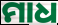
ମାଧ